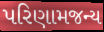
પરિણામજન્ય